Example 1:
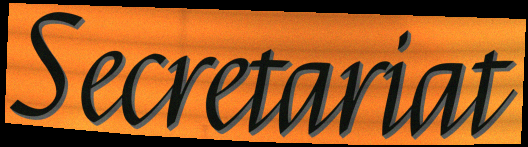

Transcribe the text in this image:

Secretariat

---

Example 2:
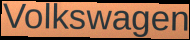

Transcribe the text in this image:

Volkswagen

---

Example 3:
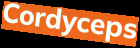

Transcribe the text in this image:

Cordyceps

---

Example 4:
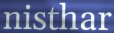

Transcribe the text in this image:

nisthar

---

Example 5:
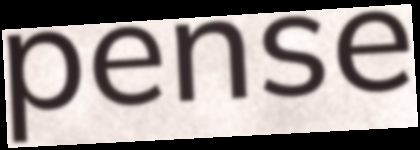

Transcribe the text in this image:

pense